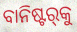
ବାନିଷ୍ଟର୍‍କୁ